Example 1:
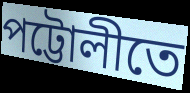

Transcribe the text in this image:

পট্টোলীতে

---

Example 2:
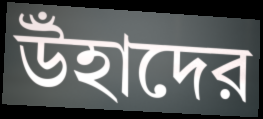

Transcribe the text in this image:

উঁহাদের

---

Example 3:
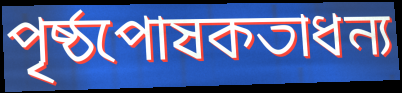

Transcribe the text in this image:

পৃষ্ঠপোষকতাধন্য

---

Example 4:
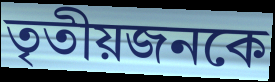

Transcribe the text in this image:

তৃতীয়জনকে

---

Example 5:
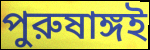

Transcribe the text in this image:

পুরুষাঙ্গই